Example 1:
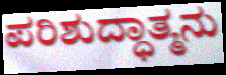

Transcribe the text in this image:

ಪರಿಶುದ್ಧಾತ್ಮನು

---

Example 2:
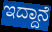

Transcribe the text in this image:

ಇದ್ದಾನೆ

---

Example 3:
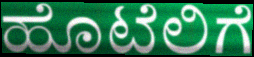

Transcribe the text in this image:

ಹೊಟೆಲಿಗೆ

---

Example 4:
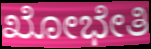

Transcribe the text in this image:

ಖೋಭೇತಿ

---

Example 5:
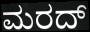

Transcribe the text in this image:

ಮರದ್